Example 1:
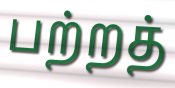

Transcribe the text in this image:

பற்றத்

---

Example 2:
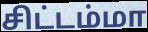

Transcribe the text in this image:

சிட்டம்மா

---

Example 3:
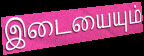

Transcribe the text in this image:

இடையையும்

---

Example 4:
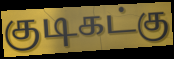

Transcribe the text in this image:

குடிகட்கு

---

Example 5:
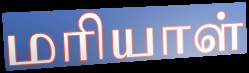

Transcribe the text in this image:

மரியாள்